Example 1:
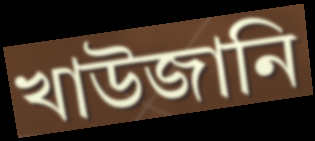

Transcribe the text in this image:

খাউজানি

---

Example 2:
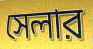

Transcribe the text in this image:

সেলার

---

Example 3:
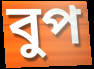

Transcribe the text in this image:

বুপ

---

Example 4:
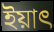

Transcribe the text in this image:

ইয়াৎ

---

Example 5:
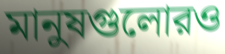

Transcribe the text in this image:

মানুষগুলোরও